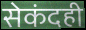
सेकंदही